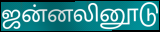
ஜன்னலினூடு